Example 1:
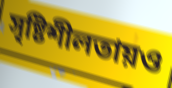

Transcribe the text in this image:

সৃষ্টিশীলতায়ও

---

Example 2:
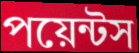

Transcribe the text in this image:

পয়েন্টস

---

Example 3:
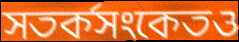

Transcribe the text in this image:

সতর্কসংকেতও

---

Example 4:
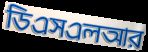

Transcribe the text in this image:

ডিএসএলআর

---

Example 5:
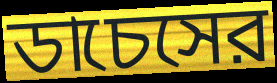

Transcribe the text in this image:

ডাচেসের